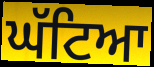
ਘੱਟਿਆ